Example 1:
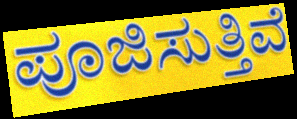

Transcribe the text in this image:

ಪೂಜಿಸುತ್ತಿವೆ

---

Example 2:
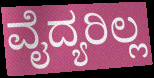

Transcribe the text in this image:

ವೈದ್ಯರಿಲ್ಲ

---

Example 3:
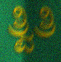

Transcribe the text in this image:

ತ್ವಿತಿ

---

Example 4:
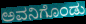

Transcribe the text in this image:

ಅವನಿಗೊಂಡು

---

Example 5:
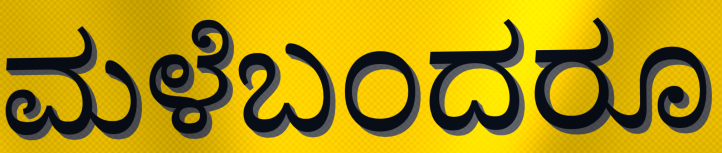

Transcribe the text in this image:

ಮಳೆಬಂದರೂ